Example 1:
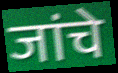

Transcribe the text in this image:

जांचे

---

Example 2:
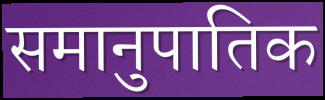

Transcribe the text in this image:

समानुपातिक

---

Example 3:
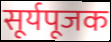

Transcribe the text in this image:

सूर्यपूजक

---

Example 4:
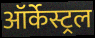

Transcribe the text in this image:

ऑर्केस्ट्रल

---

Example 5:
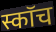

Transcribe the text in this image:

स्कॉच